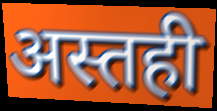
अस्तही